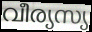
വീര്യസ്യ